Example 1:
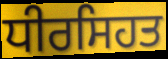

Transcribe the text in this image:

ਧੀਰਸਿਹਤ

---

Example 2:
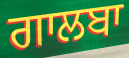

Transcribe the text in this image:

ਗਾਲਬਾ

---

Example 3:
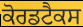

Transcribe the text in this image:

ਕੋਰਡਟੈਕਸ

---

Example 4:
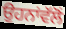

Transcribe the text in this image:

ਉਹਨਾਂਵੱਲੋਂ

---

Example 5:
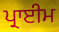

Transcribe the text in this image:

ਪ੍ਰਾਈਮ